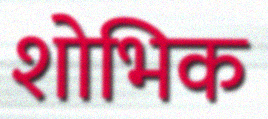
शोभिक